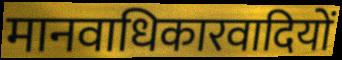
मानवाधिकारवादियों